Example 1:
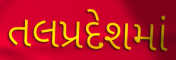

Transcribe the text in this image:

તલપ્રદેશમાં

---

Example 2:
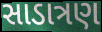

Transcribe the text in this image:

સાડાત્રણ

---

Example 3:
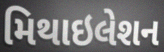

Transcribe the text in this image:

મિથાઇલેશન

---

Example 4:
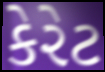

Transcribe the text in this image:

કેરેટ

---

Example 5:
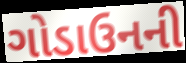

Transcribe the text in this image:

ગોડાઉનની